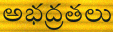
అభద్రతలు